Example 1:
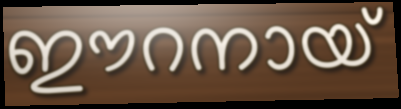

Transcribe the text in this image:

ഈറനായ്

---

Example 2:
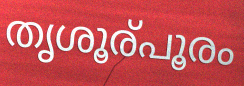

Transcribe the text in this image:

തൃശൂര്പൂരം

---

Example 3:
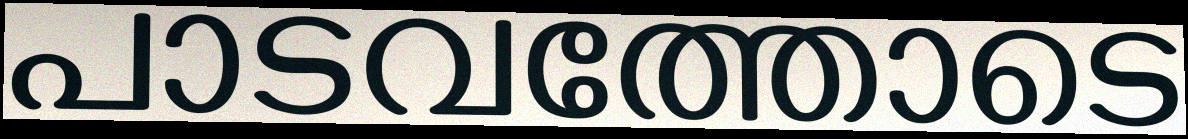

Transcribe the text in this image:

പാടവത്തോടെ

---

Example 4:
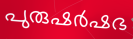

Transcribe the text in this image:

പുരുഷർഷഭ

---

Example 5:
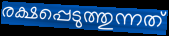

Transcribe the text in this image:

രക്ഷപ്പെടുത്തുന്നത്